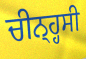
ਚੀਨ੍ਹ੍ਹਸੀ